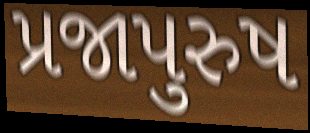
પ્રજાપુરુષ